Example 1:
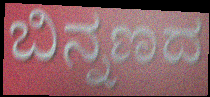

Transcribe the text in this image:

ಬಿನ್ನಣದ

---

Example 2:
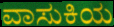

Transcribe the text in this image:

ವಾಸುಕಿಯ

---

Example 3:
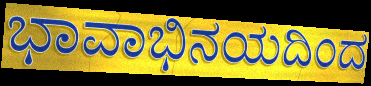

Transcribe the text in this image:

ಭಾವಾಭಿನಯದಿಂದ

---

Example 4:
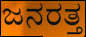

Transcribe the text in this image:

ಜನರತ್ತ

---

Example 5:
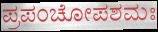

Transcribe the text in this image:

ಪ್ರಪಂಚೋಪಶಮಃ